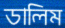
ডালিম